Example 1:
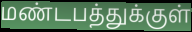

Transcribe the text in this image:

மண்டபத்துக்குள்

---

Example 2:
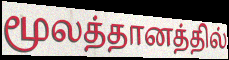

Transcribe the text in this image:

மூலத்தானத்தில்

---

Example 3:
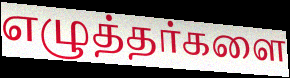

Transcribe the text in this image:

எழுத்தர்களை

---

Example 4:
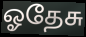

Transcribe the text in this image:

ஓதேசு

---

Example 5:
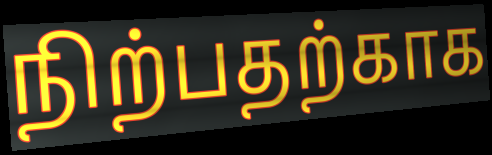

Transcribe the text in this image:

நிற்பதற்காக